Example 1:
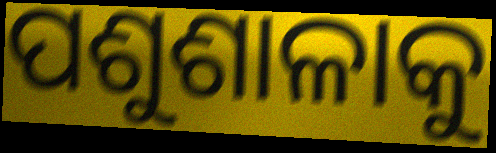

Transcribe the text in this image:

ପଶୁଶାଳାକୁ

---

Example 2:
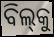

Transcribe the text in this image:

ବିଲ୍‌କୁ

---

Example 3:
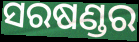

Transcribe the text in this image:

ସରଷଣ୍ଡର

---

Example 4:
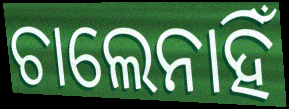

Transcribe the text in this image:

ଚାଲେନାହିଁ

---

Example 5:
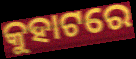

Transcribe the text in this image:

କୁହାଟରେ